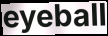
eyeball